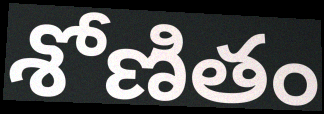
శోణితం